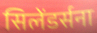
सिलेंडर्सना